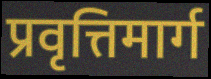
प्रवृत्तिमार्ग